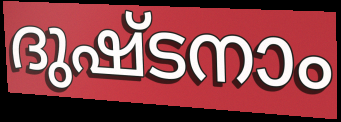
ദുഷ്ടനാം